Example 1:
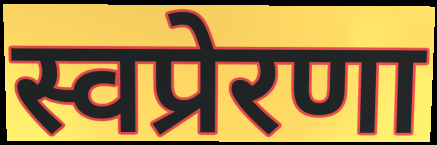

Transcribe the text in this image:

स्वप्रेरणा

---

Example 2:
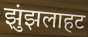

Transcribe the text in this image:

झुंझलाहट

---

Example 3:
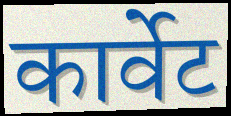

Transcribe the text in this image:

कार्वेट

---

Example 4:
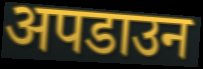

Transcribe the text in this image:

अपडाउन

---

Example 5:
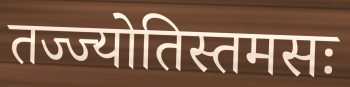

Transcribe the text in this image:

तज्ज्योतिस्तमसः